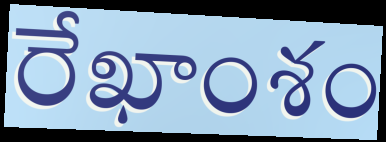
రేఖాంశం